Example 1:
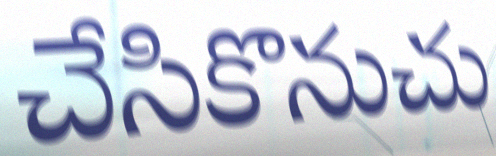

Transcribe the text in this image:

చేసికొనుచు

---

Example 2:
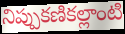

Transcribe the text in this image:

నిప్పుకణికల్లాంటి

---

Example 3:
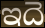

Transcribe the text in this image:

ఇదె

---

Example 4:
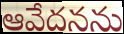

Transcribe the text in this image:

ఆవేదనను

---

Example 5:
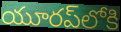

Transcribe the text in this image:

యూరప్‌లోకి